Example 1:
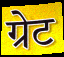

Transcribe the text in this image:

ग्रेट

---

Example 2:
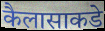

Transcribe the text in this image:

कैलासाकडे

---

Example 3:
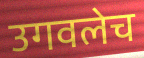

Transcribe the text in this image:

उगवलेच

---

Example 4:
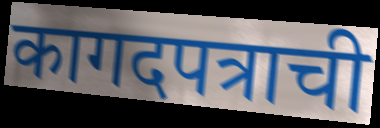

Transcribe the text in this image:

कागदपत्राची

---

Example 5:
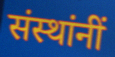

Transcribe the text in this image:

संस्थांनीं